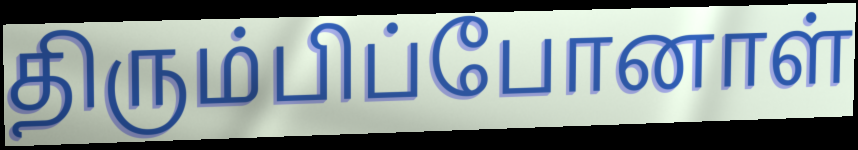
திரும்பிப்போனாள்